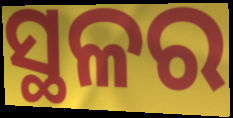
ସ୍ଥଳର